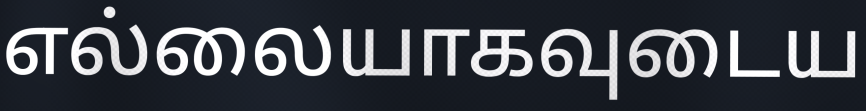
எல்லையாகவுடைய